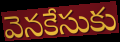
వెనకేసుకు